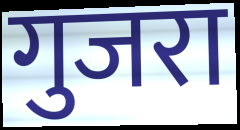
गुजरा